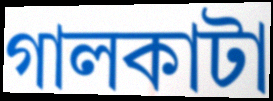
গালকাটা